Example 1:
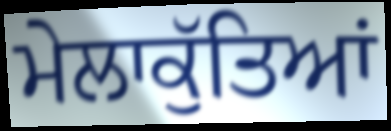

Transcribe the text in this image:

ਮੇਲਾਕੁੱਤਿਆਂ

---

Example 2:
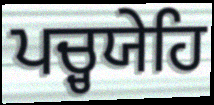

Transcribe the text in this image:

ਪਚ੍ਚਯੇਹਿ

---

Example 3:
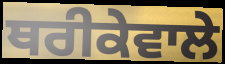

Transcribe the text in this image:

ਥਰੀਕੇਵਾਲੇ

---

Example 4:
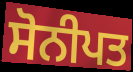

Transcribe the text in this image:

ਸੋਨੀਪਤ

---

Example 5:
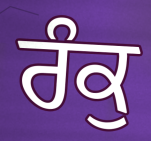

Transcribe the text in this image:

ਰੰਕੁ